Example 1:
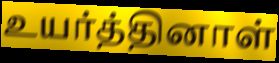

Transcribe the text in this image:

உயர்த்தினாள்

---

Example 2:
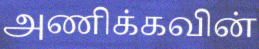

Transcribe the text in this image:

அணிக்கவின்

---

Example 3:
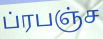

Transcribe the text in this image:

ப்ரபஞ்ச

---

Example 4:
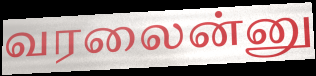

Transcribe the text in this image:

வரலைன்னு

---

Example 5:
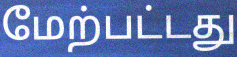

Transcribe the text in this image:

மேற்பட்டது